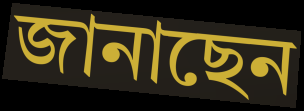
জানাছেন